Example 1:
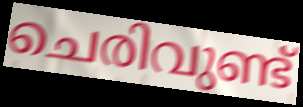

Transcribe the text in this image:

ചെരിവുണ്ട്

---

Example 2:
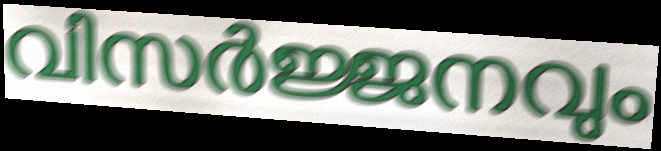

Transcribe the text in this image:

വിസർജ്ജനവും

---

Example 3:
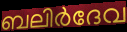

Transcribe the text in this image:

ബലിർദേവ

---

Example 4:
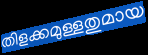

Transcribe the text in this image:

തിളക്കമുള്ളതുമായ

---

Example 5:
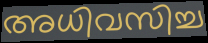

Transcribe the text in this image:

അധിവസിച്ച